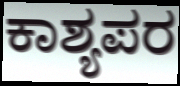
ಕಾಶ್ಯಪರ